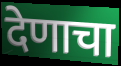
देणाचा